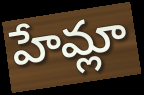
హేమ్లా